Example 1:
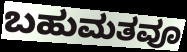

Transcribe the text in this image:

ಬಹುಮತವೂ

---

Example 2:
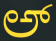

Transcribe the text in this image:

ಅ್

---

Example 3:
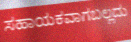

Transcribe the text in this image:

ಸಹಾಯಕವಾಗಬಲ್ಲದು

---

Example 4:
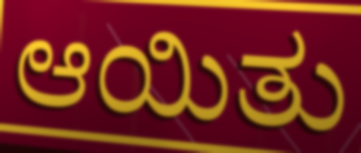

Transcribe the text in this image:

ಆಯಿತು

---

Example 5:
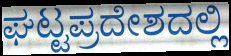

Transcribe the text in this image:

ಘಟ್ಟಪ್ರದೇಶದಲ್ಲಿ